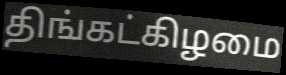
திங்கட்கிழமை